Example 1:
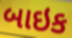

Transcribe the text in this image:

બાઇક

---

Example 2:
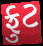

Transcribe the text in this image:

ફ્રુટ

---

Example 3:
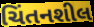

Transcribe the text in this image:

ચિંતનશીલ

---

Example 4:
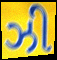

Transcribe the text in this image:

ઝી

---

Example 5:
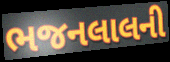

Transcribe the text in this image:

ભજનલાલની